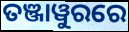
ତଞ୍ଜାୱୁରରେ